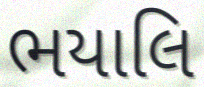
ભયાલિ